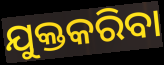
ଯୁକ୍ତକରିବା